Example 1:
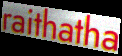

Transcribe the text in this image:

raithatha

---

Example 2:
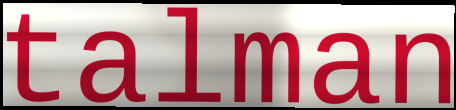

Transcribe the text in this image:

talman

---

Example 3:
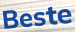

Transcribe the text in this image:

Beste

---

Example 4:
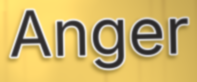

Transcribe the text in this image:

Anger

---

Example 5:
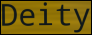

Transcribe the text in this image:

Deity